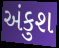
અંકુશ